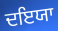
ਦਇਯਾ